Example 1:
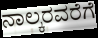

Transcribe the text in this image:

ನಾಲ್ಕರವರೆಗೆ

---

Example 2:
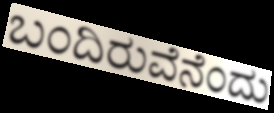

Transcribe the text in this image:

ಬಂದಿರುವೆನೆಂದು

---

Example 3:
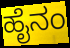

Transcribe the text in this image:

ಹೈನಂ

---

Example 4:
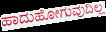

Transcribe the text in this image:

ಹಾದುಹೋಗುವುದಿಲ್ಲ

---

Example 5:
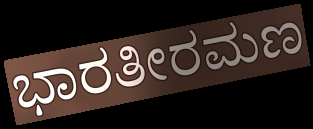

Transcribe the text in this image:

ಭಾರತೀರಮಣ